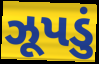
ઝૂપડું